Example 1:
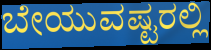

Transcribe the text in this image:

ಬೇಯುವಷ್ಟರಲ್ಲಿ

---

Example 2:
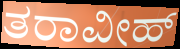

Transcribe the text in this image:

ತರಾವೀಹ್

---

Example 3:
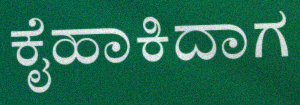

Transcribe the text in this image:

ಕೈಹಾಕಿದಾಗ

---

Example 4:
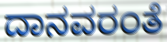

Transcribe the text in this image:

ದಾನವರಂತೆ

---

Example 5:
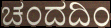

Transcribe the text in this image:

ಚಂದದಿಂ